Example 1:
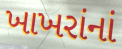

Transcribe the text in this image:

ખાખરાંનાં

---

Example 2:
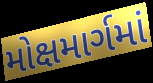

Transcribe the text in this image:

મોક્ષમાર્ગમાં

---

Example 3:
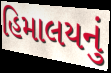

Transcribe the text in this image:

હિમાલયનું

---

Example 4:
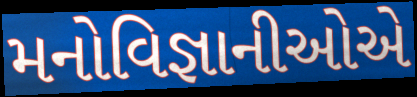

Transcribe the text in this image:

મનોવિજ્ઞાનીઓએ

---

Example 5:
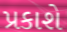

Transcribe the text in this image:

પ્રકાશે